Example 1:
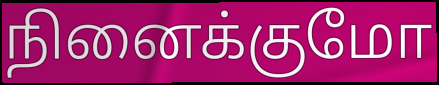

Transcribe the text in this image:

நினைக்குமோ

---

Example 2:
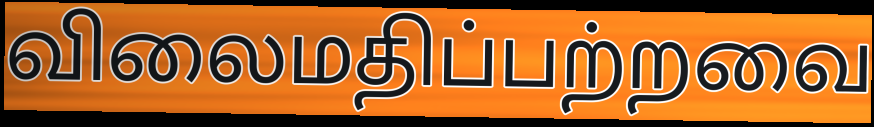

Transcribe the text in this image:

விலைமதிப்பற்றவை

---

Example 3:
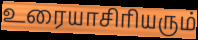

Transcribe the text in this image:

உரையாசிரியரும்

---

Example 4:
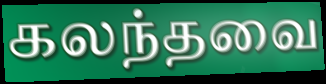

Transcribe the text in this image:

கலந்தவை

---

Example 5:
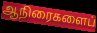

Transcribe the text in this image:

ஆநிரைகளைப்